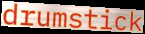
drumstick